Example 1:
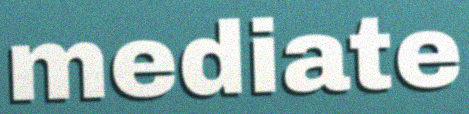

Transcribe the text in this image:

mediate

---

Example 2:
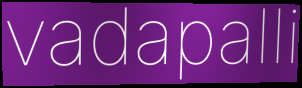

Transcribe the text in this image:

vadapalli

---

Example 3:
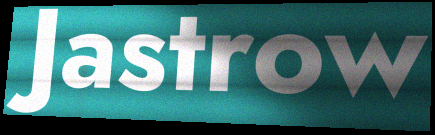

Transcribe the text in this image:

Jastrow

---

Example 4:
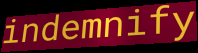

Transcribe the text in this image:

indemnify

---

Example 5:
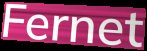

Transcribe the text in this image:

Fernet